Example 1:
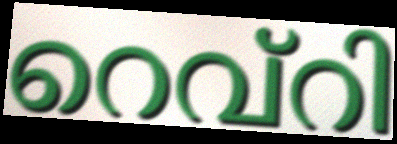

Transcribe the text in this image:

റെവ്റി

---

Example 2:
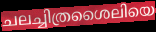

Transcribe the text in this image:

ചലച്ചിത്രശൈലിയെ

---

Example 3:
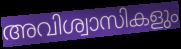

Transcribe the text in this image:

അവിശ്വാസികളും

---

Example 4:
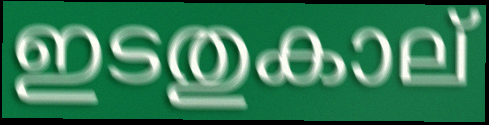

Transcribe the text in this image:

ഇടതുകാല്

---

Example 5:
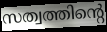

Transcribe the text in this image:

സത്വത്തിന്റെ